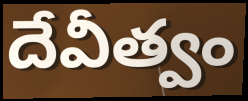
దేవీత్వం